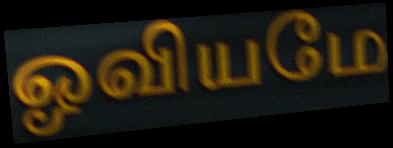
ஓவியமே